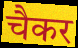
चैकर